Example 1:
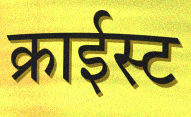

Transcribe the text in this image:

क्राईस्ट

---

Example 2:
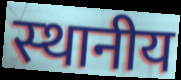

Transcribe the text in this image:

स्‍थानीय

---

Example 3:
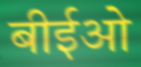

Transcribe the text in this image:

बीईओ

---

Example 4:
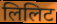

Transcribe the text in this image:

लिलिट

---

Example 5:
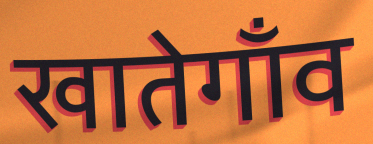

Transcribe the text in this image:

खातेगाँव